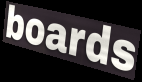
boards